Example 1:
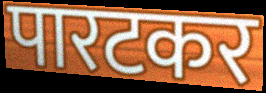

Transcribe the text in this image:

पारटकर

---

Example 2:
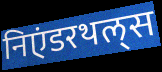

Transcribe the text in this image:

निएंडरथल्स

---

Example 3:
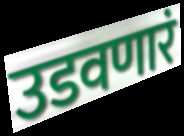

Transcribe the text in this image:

उडवणारं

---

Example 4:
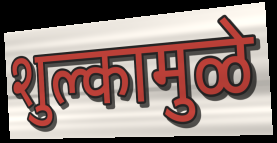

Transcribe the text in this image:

शुल्कामुळे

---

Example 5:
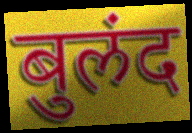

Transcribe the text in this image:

बुलंद